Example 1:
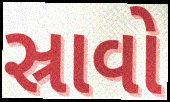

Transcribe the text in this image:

સ્રાવો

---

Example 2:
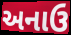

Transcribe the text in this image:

અનાઉ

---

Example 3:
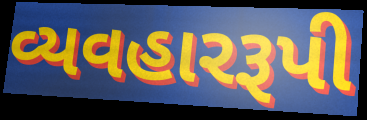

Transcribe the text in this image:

વ્યવહારરૂપી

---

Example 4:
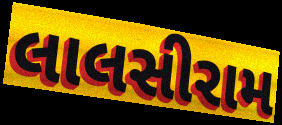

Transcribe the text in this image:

લાલસીરામ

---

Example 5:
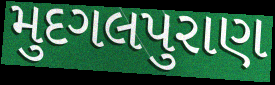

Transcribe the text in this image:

મુદગલપુરાણ